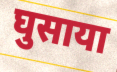
घुसाया